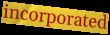
incorporated